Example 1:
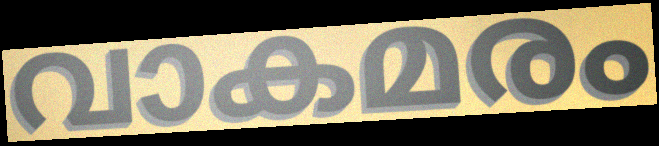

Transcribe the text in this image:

വാകമരം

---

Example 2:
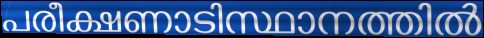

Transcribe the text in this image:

പരീക്ഷണാടിസ്ഥാനത്തിൽ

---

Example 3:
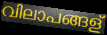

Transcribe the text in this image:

വിലാപങ്ങള്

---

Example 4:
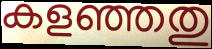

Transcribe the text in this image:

കളഞ്ഞതു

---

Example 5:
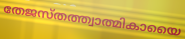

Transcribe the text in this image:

തേജസ്തത്ത്വാത്മികായൈ